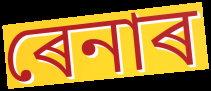
ৰেনাৰ